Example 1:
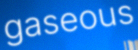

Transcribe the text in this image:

gaseous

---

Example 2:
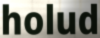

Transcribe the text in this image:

holud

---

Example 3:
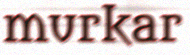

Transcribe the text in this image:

murkar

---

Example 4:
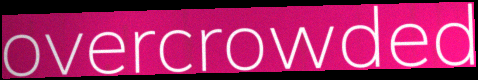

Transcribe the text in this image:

overcrowded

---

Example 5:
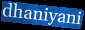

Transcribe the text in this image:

dhaniyani